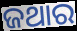
ଜଥାର